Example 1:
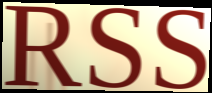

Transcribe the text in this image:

RSS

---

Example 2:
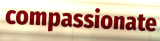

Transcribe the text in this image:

compassionate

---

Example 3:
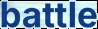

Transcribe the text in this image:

battle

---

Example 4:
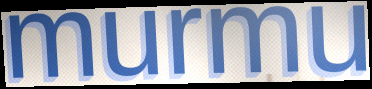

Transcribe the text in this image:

murmu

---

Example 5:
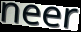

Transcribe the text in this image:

neer